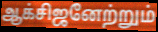
ஆக்சிஜனேற்றும்